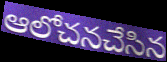
ఆలోచనచేసిన